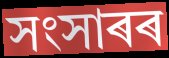
সংসাৰৰ